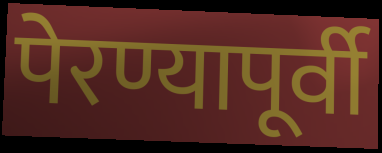
पेरण्यापूर्वी